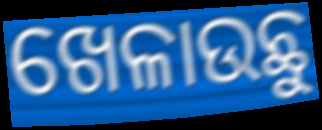
ଖେଳାଉଛୁ